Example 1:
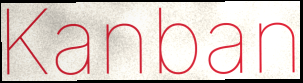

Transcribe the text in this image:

Kanban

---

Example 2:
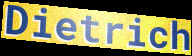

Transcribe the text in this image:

Dietrich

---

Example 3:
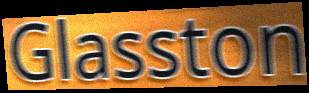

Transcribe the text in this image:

Glasston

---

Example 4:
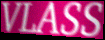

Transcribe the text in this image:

VLASS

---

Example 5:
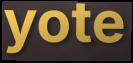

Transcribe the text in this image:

yote